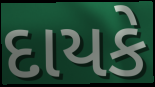
દાયકે